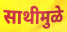
साथीमुळे